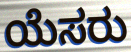
ಯೆಸರು